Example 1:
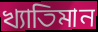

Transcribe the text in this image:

খ্যাতিমান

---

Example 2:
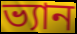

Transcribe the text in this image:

ভ্যান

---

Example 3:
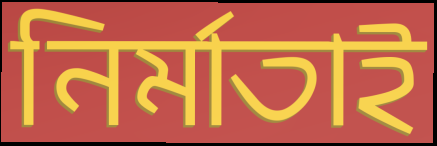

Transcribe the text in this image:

নিৰ্মাতাই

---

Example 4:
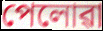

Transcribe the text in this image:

পেলোৱা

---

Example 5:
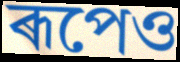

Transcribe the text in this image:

ৰূপেও